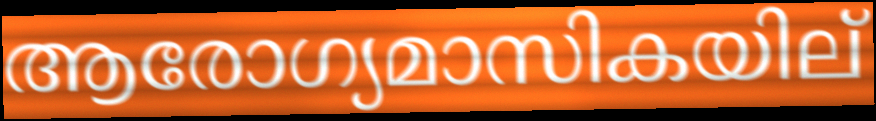
ആരോഗ്യമാസികയില്